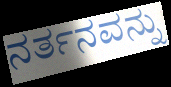
ನರ್ತನವನ್ನು